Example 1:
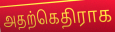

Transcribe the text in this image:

அதற்கெதிராக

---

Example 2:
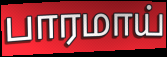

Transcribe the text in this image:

பாரமாய்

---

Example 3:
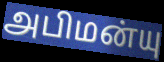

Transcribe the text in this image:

அபிமன்யு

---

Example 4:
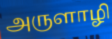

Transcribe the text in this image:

அருளாழி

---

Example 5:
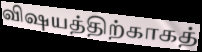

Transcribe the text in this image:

விஷயத்திற்காகத்